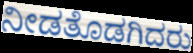
ನೀಡತೊಡಗಿದರು